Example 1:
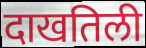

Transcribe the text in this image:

दाखतिली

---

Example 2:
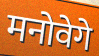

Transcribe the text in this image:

मनोवेगे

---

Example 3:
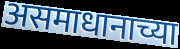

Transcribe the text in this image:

असमाधानाच्या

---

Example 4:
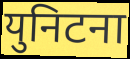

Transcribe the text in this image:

युनिटना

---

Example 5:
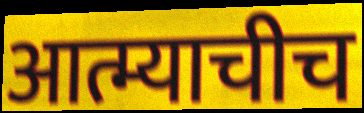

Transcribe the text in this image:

आत्म्याचीच